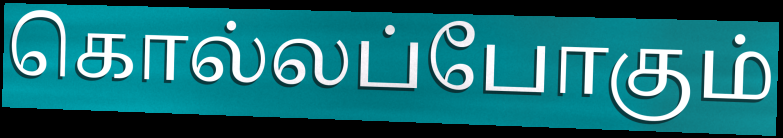
கொல்லப்போகும்